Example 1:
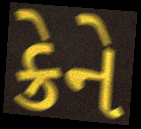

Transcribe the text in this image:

ક્રેને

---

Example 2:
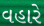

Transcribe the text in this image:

વહારે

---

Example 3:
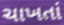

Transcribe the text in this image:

ચાખતાં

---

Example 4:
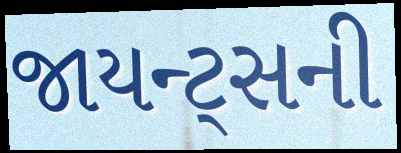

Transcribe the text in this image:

જાયન્ટ્સની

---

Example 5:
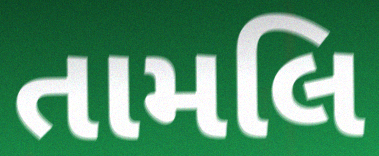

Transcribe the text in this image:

તામલિ